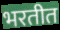
भरतीत